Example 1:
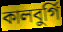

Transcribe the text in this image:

কালবুর্গি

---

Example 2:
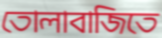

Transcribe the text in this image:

তোলাবাজিতে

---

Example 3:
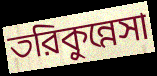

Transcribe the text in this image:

তরিকুন্নেসা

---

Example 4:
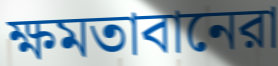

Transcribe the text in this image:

ক্ষমতাবানেরা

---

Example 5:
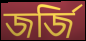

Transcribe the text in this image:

জর্জি